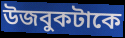
উজবুকটাকে